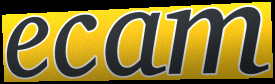
ecam